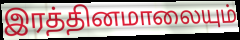
இரத்தினமாலையும்